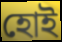
হোই